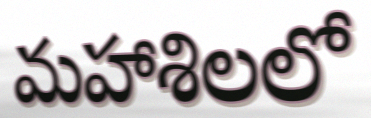
మహాశిలలో